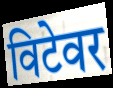
विटेवर